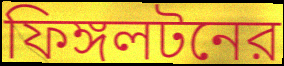
ফিঙ্গলটনের